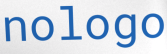
nologo